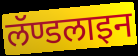
लॅण्डलाइन